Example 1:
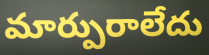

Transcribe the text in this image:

మార్పురాలేదు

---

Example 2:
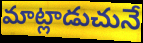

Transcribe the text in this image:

మాట్లాడుచునే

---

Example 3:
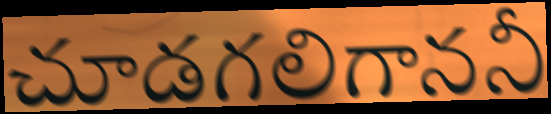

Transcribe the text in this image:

చూడగలిగాననీ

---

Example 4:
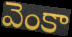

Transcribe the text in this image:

వెంకా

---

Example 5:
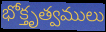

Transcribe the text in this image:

భోక్తృత్వములు